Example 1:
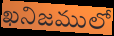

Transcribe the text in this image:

ఖనిజములో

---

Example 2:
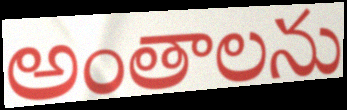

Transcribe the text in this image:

అంతాలను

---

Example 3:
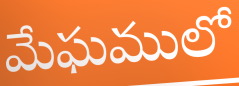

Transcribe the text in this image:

మేఘములో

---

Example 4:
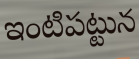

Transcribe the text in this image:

ఇంటిపట్టున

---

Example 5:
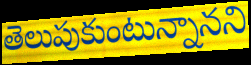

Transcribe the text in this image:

తెలుపుకుంటున్నానని